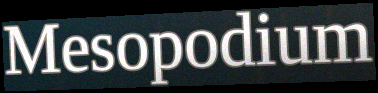
Mesopodium